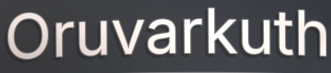
Oruvarkuth